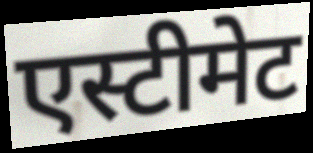
एस्टीमेट